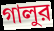
গালুর